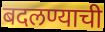
बदलण्याची